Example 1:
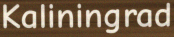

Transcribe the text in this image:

Kaliningrad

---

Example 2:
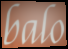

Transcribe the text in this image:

balo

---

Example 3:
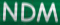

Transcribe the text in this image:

NDM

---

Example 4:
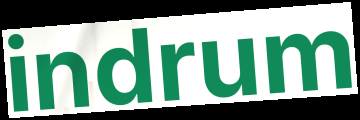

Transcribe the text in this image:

indrum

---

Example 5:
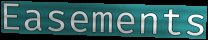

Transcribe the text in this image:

Easements